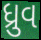
ધ્રુવ